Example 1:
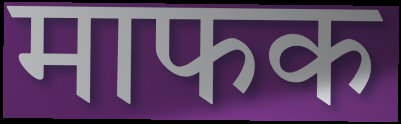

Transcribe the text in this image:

माफक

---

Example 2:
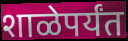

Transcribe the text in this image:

शाळेपर्यंत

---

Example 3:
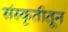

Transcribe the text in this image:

संस्कृतीतून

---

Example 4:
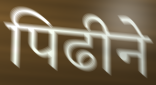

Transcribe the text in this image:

पिढीने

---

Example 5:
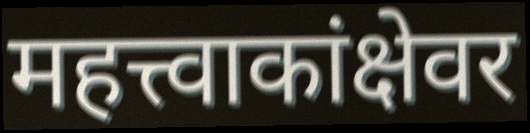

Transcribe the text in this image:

महत्त्वाकांक्षेवर